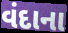
વંદાના